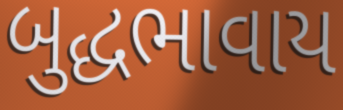
બુદ્ધભાવાય